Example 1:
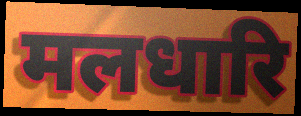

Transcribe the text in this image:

मलधारि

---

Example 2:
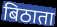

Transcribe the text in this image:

बिठाता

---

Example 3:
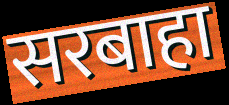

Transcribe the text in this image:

सरबाहा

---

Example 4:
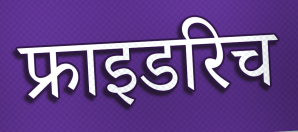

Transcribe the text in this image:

फ्राइडरिच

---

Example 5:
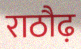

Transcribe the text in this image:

राठौढ़